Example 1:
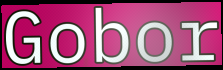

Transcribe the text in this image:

Gobor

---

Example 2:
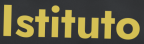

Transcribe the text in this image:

Istituto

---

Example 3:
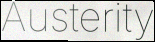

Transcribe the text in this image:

Austerity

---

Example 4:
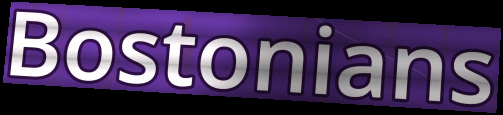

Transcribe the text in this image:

Bostonians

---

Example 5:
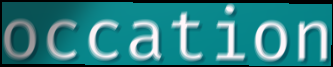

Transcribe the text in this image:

occation